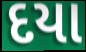
દયા